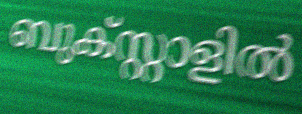
ബുക്സ്റ്റാളിൽ